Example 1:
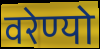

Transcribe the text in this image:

वरेण्यो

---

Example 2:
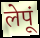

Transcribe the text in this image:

लेपूं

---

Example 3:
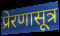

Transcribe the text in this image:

प्रेरणासूत्र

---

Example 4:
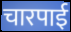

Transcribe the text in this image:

चारपाई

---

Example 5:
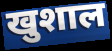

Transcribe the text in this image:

खुशाल